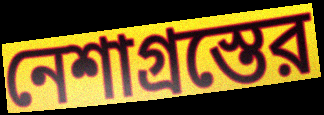
নেশাগ্রস্তের